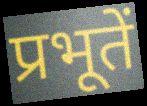
प्रभूतें